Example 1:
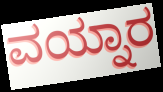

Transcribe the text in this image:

ವಯ್ನಾರ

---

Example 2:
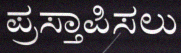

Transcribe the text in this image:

ಪ್ರಸ್ತಾಪಿಸಲು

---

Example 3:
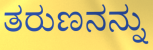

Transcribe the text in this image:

ತರುಣನನ್ನು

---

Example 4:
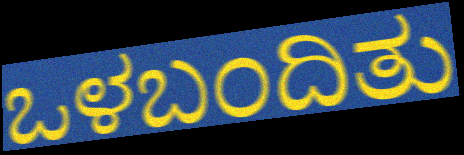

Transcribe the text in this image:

ಒಳಬಂದಿತು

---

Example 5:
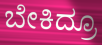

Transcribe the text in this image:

ಬೇಕಿದ್ರೂ